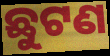
ଛୁଟଣ